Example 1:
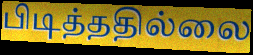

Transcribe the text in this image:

பிடித்ததில்லை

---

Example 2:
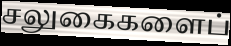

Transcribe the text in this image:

சலுகைகளைப்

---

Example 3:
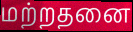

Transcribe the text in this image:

மற்றதனை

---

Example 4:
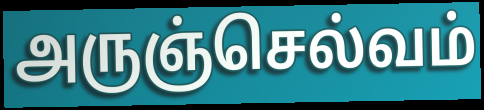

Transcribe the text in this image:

அருஞ்செல்வம்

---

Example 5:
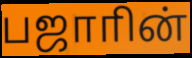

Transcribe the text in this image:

பஜாரின்